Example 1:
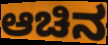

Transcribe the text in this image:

ಆಚಿನ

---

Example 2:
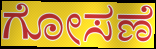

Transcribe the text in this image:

ಗೋಸಣೆ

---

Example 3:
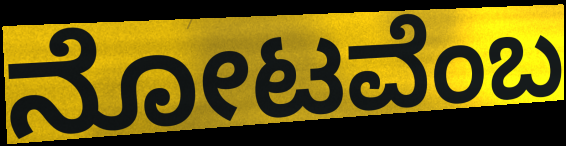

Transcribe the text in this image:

ನೋಟವೆಂಬ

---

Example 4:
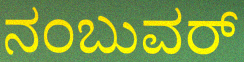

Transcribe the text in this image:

ನಂಬುವರ್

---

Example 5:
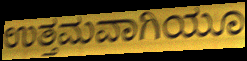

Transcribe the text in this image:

ಉತ್ತಮವಾಗಿಯೂ